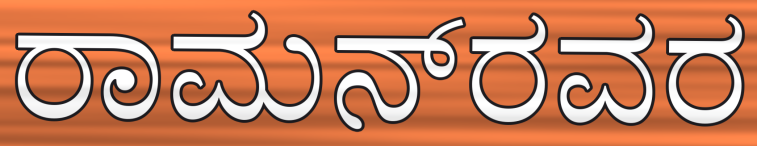
ರಾಮನ್‌ರವರ